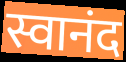
स्वानंद